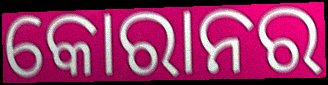
କୋରାନର